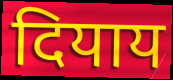
दियाय